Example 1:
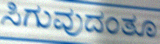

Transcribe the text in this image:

ಸಿಗುವುದಂತೂ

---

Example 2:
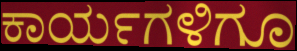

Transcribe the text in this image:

ಕಾರ್ಯಗಳಿಗೂ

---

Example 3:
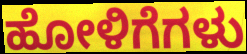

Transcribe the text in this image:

ಹೋಳಿಗೆಗಳು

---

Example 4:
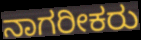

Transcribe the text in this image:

ನಾಗರೀಕರು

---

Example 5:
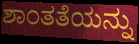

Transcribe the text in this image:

ಶಾಂತತೆಯನ್ನು